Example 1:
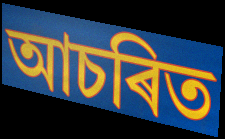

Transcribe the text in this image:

আচৰিত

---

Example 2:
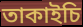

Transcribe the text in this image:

তাকাইচি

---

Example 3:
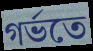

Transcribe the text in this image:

গৰ্ভতে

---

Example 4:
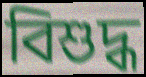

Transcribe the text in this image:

বিশুদ্ধ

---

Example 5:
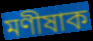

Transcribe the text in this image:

মণীষাক